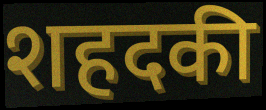
शहदकी